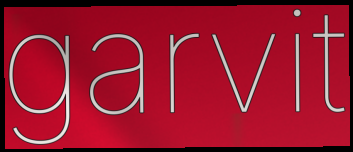
garvit